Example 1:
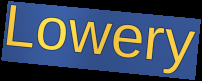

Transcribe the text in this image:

Lowery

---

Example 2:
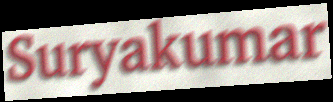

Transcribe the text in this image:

Suryakumar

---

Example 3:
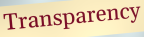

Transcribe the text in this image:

Transparency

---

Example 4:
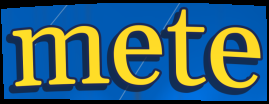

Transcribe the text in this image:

mete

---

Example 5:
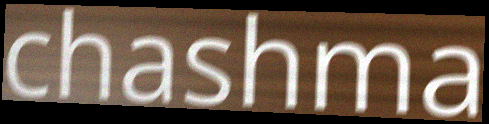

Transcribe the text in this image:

chashma